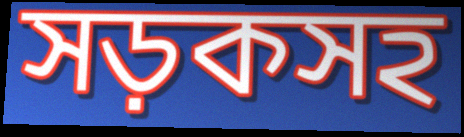
সড়কসহ